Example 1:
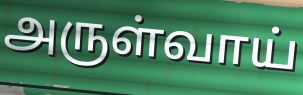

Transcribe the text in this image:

அருள்வாய்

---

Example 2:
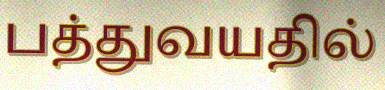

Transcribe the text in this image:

பத்துவயதில்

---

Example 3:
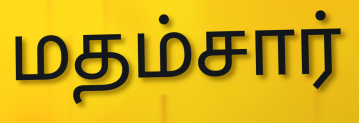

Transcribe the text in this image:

மதம்சார்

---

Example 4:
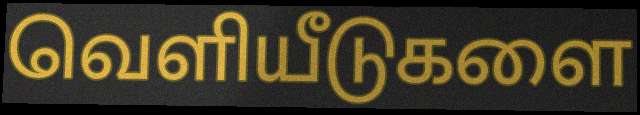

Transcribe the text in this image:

வெளியீடுகளை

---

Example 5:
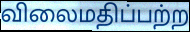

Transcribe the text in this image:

விலைமதிப்பற்ற